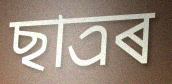
ছাত্ৰৰ